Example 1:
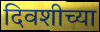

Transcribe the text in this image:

दिवशीच्या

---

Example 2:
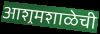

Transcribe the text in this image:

आश्रमशाळेची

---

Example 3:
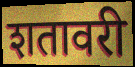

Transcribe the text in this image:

शतावरी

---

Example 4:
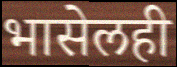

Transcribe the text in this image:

भासेलही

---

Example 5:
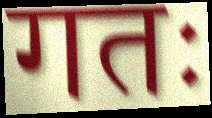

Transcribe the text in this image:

गतः